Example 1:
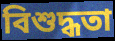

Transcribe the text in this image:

বিশুদ্ধতা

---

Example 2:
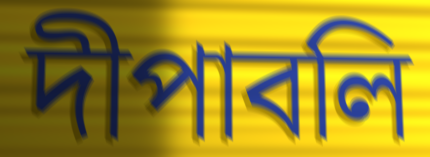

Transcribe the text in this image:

দীপাবলি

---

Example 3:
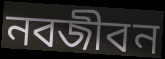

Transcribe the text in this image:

নবজীবন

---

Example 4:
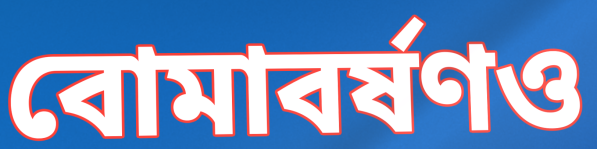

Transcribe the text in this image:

বোমাবর্ষণও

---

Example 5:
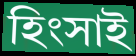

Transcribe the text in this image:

হিংসাই